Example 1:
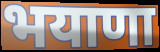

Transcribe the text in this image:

भयाणा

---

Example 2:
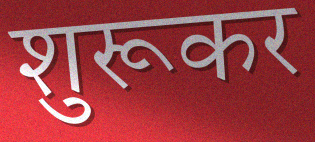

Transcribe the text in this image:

शुरूकर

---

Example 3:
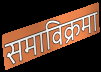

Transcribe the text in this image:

समाविक्रमा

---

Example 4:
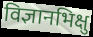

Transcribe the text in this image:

विज्ञानभिक्षु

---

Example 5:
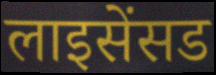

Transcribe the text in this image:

लाइसेंसड